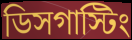
ডিসগাস্টিং